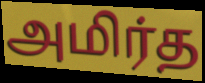
அமிர்த